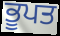
ਭੂਪਤ